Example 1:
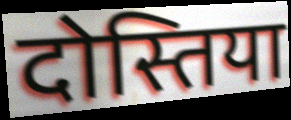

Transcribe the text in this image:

दोस्तिया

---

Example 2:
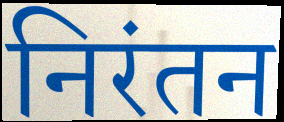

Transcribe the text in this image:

निरंतन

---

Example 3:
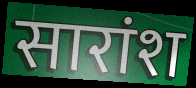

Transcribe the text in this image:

सारांश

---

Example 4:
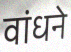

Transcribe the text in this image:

वांधने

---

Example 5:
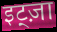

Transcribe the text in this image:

इट्ज़ा